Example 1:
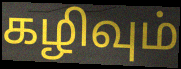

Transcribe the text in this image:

கழிவும்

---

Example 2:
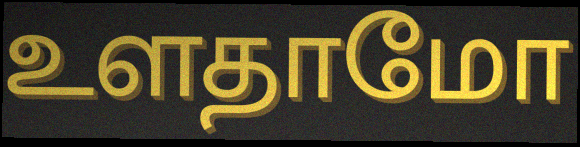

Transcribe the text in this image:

உளதாமோ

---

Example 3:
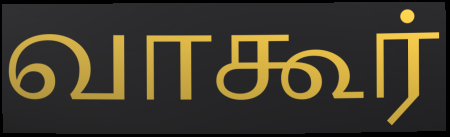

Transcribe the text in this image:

வாகூர்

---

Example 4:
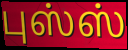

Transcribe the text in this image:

புஸ்ஸ்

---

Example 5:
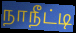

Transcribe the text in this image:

நாநீட்டி